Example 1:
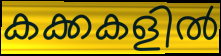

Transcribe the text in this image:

കക്കകളിൽ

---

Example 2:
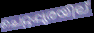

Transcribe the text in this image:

ചെറ്റപ്പുരയില്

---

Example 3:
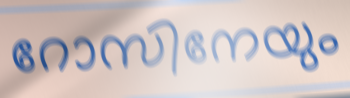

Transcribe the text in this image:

റോസിനേയും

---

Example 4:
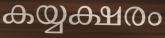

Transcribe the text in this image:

കയ്യക്ഷരം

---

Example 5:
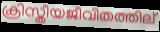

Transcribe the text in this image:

ക്രിസ്തീയജീവിതത്തില്